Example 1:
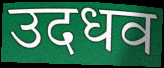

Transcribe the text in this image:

उदधव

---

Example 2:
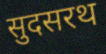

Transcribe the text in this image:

सुदसरथ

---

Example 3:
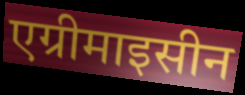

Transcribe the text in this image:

एग्रीमाइसीन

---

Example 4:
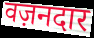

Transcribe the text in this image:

वज़नदार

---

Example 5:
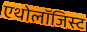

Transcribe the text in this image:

एथोलॉजिस्ट